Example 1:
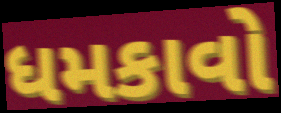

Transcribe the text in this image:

ધમકાવો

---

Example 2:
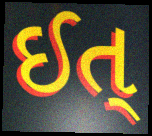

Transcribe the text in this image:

ઈત્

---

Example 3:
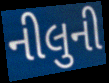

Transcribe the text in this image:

નીલુની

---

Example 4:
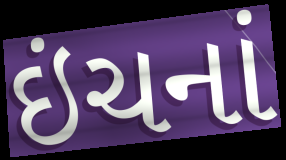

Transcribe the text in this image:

ઇંચનાં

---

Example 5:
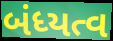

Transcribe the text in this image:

બંધ્યત્વ